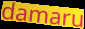
damaru